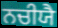
ਨਚੀਯੈ